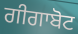
ਗੀਗਾਬੋਟ